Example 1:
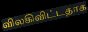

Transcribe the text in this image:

விலகிவிட்டதாக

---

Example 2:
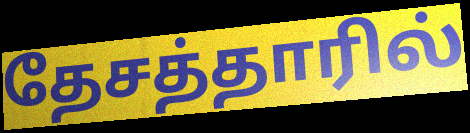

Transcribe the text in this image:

தேசத்தாரில்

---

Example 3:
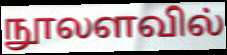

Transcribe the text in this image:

நூலளவில்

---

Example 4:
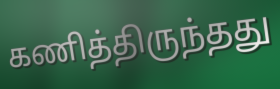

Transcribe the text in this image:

கணித்திருந்தது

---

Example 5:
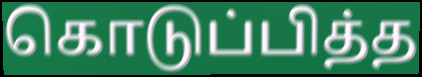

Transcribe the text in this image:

கொடுப்பித்த